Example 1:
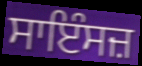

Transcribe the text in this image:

ਸਾਇੰਸਜ਼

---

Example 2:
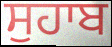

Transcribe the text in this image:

ਸੁਹਾਬ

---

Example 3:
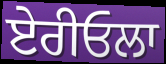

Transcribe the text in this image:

ਏਰੀਓਲਾ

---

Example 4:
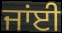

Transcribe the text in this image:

ਜਾਂਈ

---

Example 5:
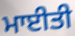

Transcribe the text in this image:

ਮਾਈਤੀ